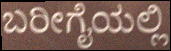
ಬರೀಗೈಯಲ್ಲಿ